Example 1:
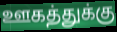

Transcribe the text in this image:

ஊகத்துக்கு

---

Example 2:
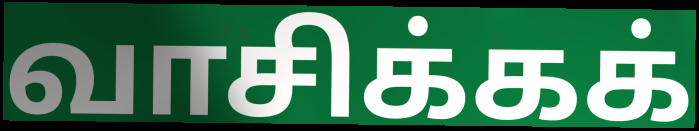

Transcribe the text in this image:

வாசிக்கக்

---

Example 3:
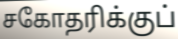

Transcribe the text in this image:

சகோதரிக்குப்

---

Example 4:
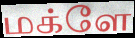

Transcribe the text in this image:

மக்ளே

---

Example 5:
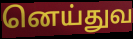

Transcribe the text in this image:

னெய்துவ